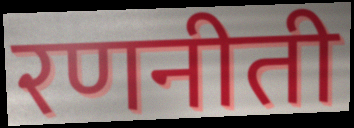
रणनीती